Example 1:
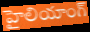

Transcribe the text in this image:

హైలియాంగ్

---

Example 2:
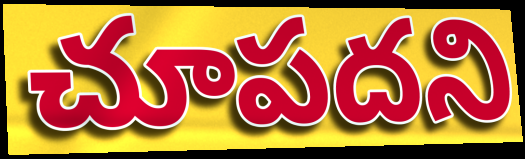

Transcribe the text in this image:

చూపదని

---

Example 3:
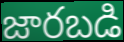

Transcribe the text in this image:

జారబడి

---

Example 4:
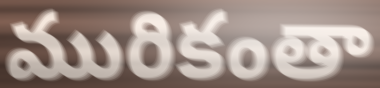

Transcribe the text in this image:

మురికంతా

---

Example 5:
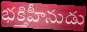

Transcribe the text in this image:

భక్తిహీనుడు